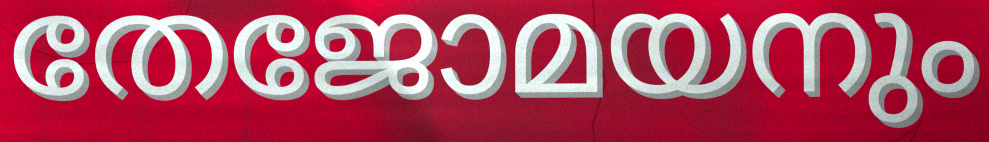
തേജോമയനും